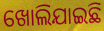
ଖୋଲିଯାଇଛି